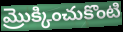
మ్రొక్కించుకొంటి